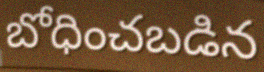
బోధించబడిన